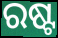
ରଷ୍ଟ